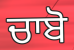
ਚਾਬੋ